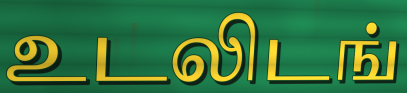
உடலிடங்